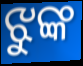
ଝୁଙ୍କ